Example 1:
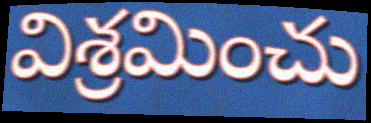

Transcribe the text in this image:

విశ్రమించు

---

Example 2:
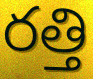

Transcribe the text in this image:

రత్తి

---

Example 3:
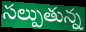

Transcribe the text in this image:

సల్పుతున్న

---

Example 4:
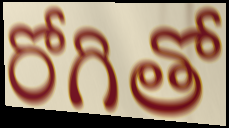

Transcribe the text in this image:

రోగితో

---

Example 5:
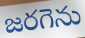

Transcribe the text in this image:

జరగెను